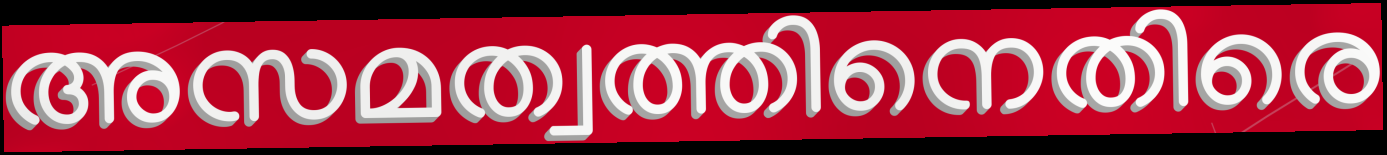
അസമത്വത്തിനെതിരെ